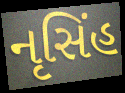
નૃસિંહ